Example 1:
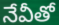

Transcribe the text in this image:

నేవీతో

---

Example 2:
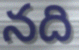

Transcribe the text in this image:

నది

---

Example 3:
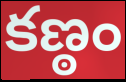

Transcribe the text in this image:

కణ్ఠం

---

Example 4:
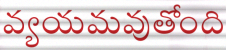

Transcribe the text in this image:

వ్యయమవుతోంది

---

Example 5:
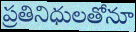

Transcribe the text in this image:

ప్రతినిధులతోనూ